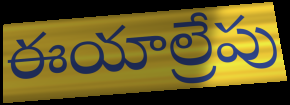
ఈయాల్రేపు